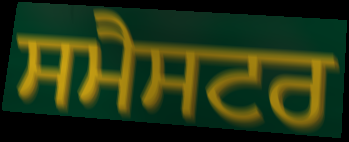
ਸਮੈਸਟਰ